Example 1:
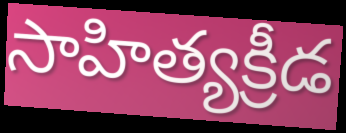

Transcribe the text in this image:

సాహిత్యక్రీడ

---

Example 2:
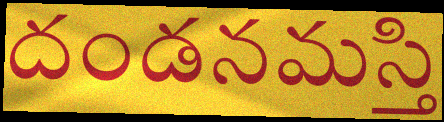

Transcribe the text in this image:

దండనమస్తి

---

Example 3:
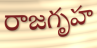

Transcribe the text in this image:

రాజగృహ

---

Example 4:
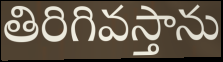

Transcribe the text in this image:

తిరిగివస్తాను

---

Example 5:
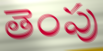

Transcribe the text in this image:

తెంపు